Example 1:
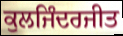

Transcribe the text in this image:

ਕੁਲਜਿੰਦਰਜੀਤ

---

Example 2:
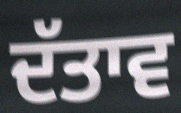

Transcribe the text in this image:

ਦੱਤਾਵ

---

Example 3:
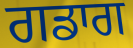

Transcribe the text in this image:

ਗਡਾਗ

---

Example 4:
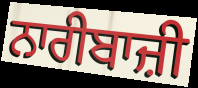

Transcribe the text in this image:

ਨਾਰੀਬਾਜ਼ੀ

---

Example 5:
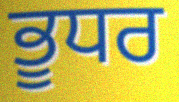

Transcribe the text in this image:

ਭੂਧਰ